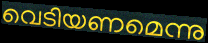
വെടിയണമെന്നു